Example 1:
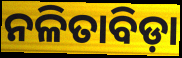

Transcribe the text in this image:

ନଳିତାବିଡ଼ା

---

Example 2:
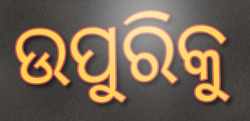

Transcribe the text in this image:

ଉପୁରିକୁ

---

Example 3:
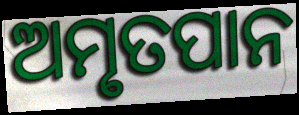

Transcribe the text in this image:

ଅମୃତପାନ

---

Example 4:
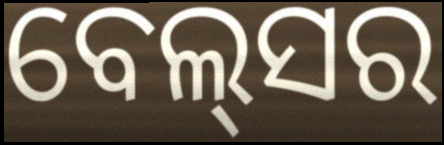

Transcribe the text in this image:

ବେଲ୍‌ସର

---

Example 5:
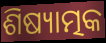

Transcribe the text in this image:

ଶିଷ୍ୟାତ୍ମକ